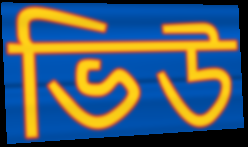
ভিউ